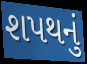
શપથનું